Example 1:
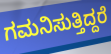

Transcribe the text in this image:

ಗಮನಿಸುತ್ತಿದ್ದರೆ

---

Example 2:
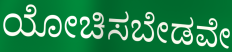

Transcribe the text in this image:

ಯೋಚಿಸಬೇಡವೇ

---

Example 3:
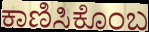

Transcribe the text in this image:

ಕಾಣಿಸಿಕೊಂಬ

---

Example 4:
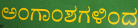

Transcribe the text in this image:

ಅಂಗಾಂಶಗಳಿಂದ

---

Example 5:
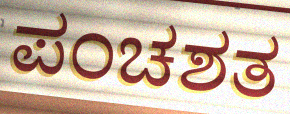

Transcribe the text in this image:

ಪಂಚಶತ